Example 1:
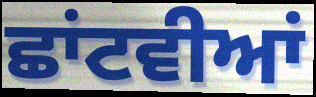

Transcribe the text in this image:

ਛਾਂਟਵੀਆਂ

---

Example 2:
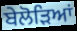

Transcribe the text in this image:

ਬੇਲੋੜਿਆਂ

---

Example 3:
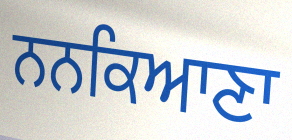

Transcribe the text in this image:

ਨਨਕਿਆਣਾ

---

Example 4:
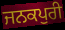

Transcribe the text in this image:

ਜਨਕਪੁਰੀ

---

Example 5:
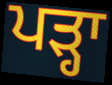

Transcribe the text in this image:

ਪੜ੍ਹਾ